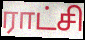
ராட்சி